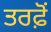
ਤਰਫ਼ੋਂ